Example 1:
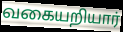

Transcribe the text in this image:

வகையறியார்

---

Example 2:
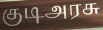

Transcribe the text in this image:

குடிஅரசு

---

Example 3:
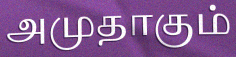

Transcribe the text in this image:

அமுதாகும்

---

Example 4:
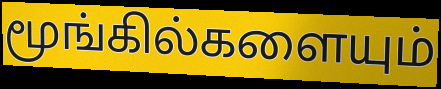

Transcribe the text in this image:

மூங்கில்களையும்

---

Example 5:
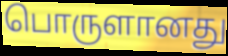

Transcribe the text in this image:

பொருளானது